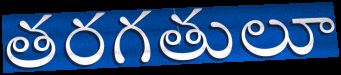
తరగతులూ